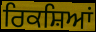
ਰਿਕਸ਼ਿਆਂ